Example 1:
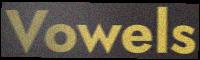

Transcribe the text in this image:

Vowels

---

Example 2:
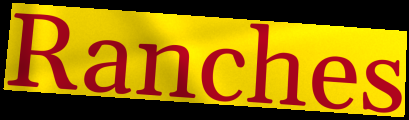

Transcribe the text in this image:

Ranches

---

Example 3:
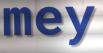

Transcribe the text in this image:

mey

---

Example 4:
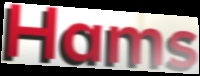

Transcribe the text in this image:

Hams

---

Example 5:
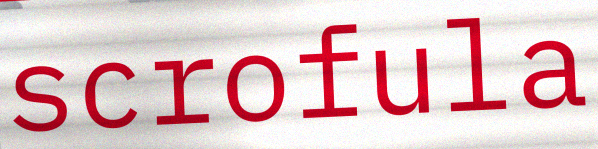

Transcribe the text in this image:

scrofula